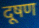
दूषण